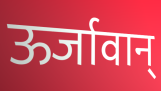
ऊर्जावान्